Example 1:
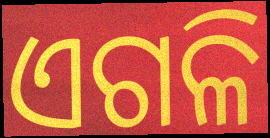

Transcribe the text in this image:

ଏଗଳି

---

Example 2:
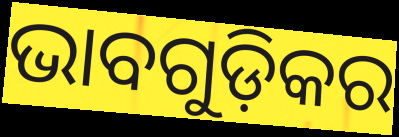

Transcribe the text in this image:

ଭାବଗୁଡ଼ିକର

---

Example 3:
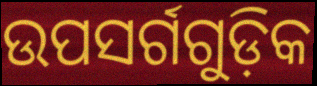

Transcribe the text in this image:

ଉପସର୍ଗଗୁଡ଼ିକ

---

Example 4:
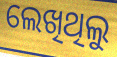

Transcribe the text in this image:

ଲେଖିଥିଲୁ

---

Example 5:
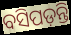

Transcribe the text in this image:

ବସିପଡ଼ନ୍ତି